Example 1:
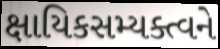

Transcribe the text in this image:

ક્ષાયિકસમ્યક્ત્વને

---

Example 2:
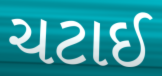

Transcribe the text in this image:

ચટાઈ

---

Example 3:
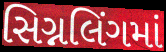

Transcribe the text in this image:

સિગ્નલિંગમાં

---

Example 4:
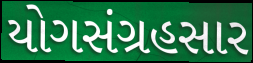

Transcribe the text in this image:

યોગસંગ્રહસાર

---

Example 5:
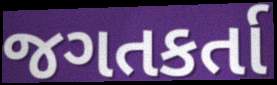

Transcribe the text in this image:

જગતકર્તા